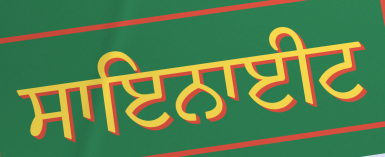
ਸਾਇਨਾਈਟ